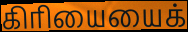
கிரியையைக்